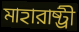
মাহারাষ্ট্রী